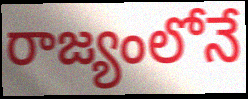
రాజ్యంలోనే